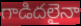
గాడిదలైనా